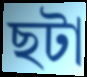
ছটা